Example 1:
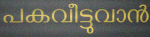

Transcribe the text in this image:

പകവീട്ടുവാൻ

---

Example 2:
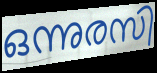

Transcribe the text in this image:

ഒന്നുരസി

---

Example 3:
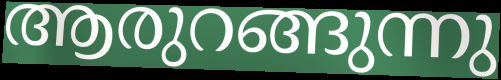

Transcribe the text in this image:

ആരുറങ്ങുന്നു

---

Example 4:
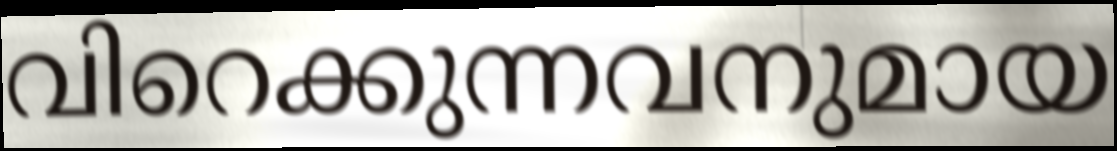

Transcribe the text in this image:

വിറെക്കുന്നവനുമായ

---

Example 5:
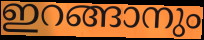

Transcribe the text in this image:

ഇറങ്ങാനും